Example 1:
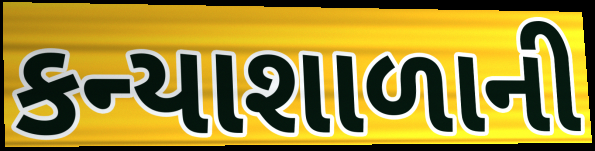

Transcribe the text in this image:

કન્યાશાળાની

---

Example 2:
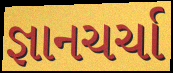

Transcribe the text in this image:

જ્ઞાનચર્ચા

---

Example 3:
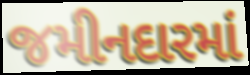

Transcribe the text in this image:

જમીનદારમાં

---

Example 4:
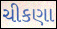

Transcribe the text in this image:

ચીકણા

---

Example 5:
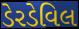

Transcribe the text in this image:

ડેરડેવિલ